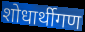
शोधार्थीगण